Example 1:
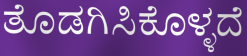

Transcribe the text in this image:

ತೊಡಗಿಸಿಕೊಳ್ಳದೆ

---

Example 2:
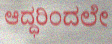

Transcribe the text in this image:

ಆದ್ಧರಿಂದಲೇ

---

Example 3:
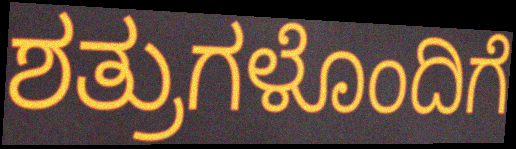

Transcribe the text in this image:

ಶತ್ರುಗಳೊಂದಿಗೆ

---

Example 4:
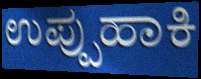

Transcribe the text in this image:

ಉಪ್ಪುಹಾಕಿ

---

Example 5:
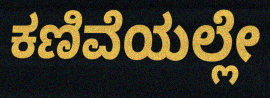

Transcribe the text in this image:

ಕಣಿವೆಯಲ್ಲೇ